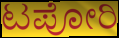
ಟಪೋರಿ